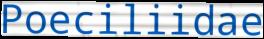
Poeciliidae